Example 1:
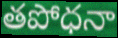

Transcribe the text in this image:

తపోధనా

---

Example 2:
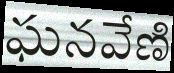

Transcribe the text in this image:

ఘనవేణి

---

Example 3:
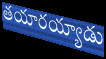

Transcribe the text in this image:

తయారయ్యాడు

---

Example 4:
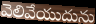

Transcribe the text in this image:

వెలివేయుదును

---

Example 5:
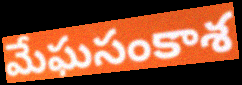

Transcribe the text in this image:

మేఘసంకాశ